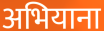
अभियाना